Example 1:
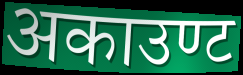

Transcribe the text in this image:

अकाउण्ट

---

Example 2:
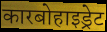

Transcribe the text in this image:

कारबोहाइड्रेट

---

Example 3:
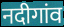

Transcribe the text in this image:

नदीगांव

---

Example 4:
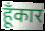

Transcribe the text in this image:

हूँकार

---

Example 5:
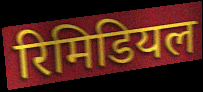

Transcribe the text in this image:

रिमिडियल